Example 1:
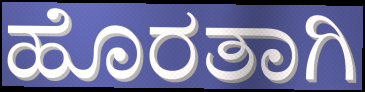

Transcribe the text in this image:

ಹೊರತಾಗಿ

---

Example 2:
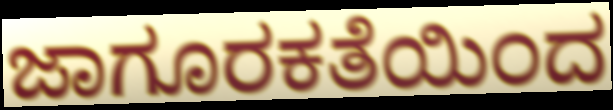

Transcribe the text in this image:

ಜಾಗೂರಕತೆಯಿಂದ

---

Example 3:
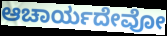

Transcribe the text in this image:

ಆಚಾರ್ಯದೇವೋ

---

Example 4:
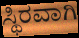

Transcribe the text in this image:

ಸ್ಥಿರವಾಗಿ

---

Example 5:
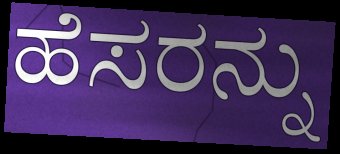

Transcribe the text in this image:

ಹೆಸರನ್ನು